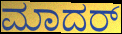
ಮಾದರ್